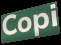
Copi